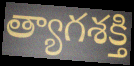
త్యాగశక్తి